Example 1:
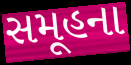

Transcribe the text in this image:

સમૂહના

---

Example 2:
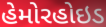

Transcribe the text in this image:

હેમોરહોઇડ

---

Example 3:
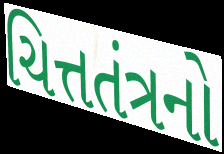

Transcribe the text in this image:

ચિત્તતંત્રનો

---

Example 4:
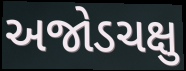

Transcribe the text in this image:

અજોડચક્ષુ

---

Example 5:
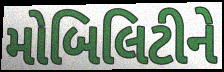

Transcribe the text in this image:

મોબિલિટીને